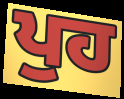
ਪੁਹ